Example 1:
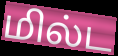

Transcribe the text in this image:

மில்ட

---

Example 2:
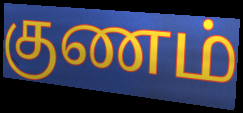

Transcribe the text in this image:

குணம்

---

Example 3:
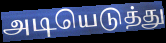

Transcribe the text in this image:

அடியெடுத்து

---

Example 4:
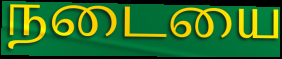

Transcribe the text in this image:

நடையை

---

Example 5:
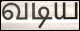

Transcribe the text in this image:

வடிய